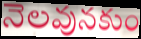
నెలవునకుం